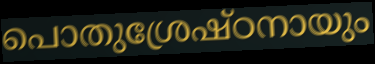
പൊതുശ്രേഷ്ഠനായും